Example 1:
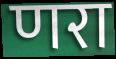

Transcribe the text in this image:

णरा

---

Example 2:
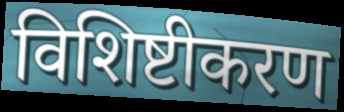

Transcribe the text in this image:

विशिष्टीकरण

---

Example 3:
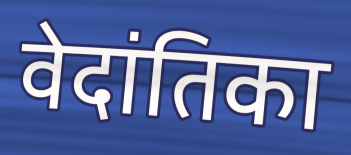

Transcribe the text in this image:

वेदांतिका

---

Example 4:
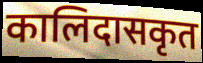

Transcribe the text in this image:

कालिदासकृत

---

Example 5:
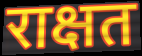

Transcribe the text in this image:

राक्षत